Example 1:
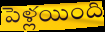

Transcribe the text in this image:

పెళ్లయింది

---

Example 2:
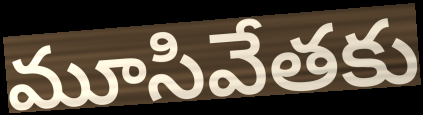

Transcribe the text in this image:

మూసివేతకు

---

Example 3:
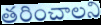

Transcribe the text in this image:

తరించాలని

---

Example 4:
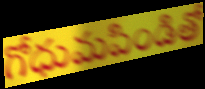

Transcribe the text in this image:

గోధుమపిండితో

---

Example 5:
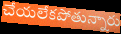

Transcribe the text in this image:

చేయలేకపోతున్నారు